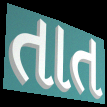
તાત